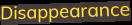
Disappearance